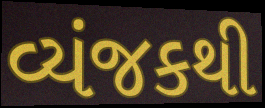
વ્યંજકથી